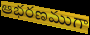
ఆభరణముగా